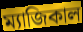
ম্যাজিকাল